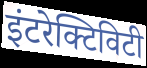
इंटरेक्टिविटी